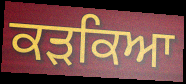
ਕੜਕਿਆ